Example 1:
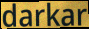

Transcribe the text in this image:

darkar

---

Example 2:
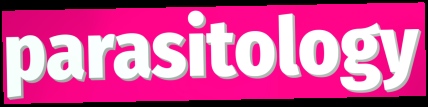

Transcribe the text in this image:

parasitology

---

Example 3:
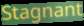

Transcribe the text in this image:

Stagnant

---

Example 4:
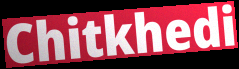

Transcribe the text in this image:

Chitkhedi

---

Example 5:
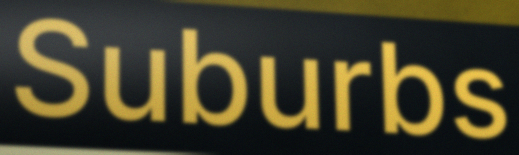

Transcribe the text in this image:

Suburbs